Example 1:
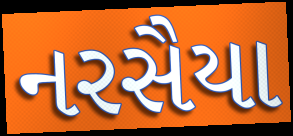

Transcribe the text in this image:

નરસૈયા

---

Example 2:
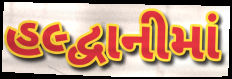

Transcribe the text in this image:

હલ્દ્વાનીમાં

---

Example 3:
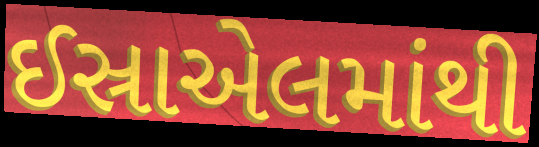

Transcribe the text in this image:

ઈસ્રાએલમાંથી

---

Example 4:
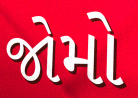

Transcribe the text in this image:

જોમો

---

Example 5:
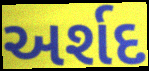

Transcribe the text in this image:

અર્શદ